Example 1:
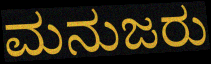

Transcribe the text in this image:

ಮನುಜರು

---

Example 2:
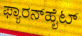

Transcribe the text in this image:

ಫ್ಯಾರನ್‌ಹೈಟ್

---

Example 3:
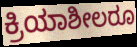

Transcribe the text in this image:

ಕ್ರಿಯಾಶೀಲರೂ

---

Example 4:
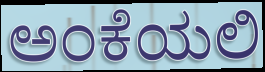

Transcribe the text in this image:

ಅಂಕೆಯಲಿ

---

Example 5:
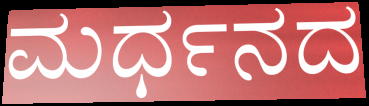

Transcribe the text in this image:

ಮರ್ಧನದ